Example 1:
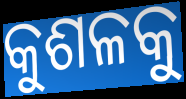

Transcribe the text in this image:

କୁଶଳକୁ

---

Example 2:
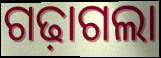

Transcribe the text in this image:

ଗଢ଼ାଗଲା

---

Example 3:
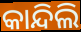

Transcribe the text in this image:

କାନ୍ଦିଲି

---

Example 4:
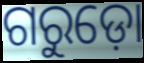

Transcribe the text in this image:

ଗରୁଡ଼ୋ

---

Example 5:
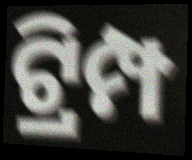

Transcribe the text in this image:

ଟ୍ରିମ୍ପ